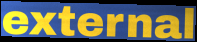
external